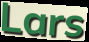
Lars